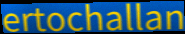
ertochallan